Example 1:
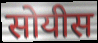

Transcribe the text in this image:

सोयीस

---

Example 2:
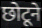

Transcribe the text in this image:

छोटूने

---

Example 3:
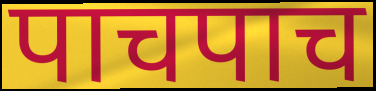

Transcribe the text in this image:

पाचपाच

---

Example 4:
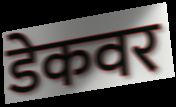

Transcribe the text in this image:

डेकवर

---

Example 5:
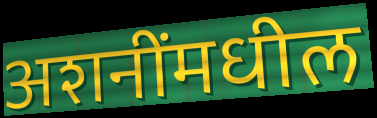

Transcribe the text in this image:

अशनींमधील